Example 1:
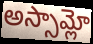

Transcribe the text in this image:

అస్సామ్లో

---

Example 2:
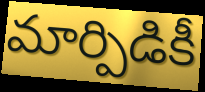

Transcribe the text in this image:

మార్పిడికీ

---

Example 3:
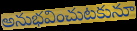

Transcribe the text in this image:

అనుభవించుటకునూ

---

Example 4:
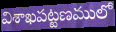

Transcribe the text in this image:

విశాఖపట్టణములో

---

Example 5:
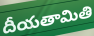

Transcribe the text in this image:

దీయతామితి